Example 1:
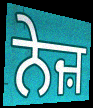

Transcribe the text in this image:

ਨੇਜ਼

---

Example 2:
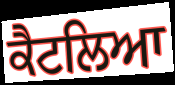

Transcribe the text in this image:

ਕੈਟਲਿਆ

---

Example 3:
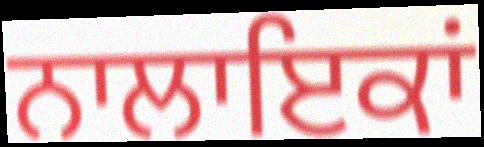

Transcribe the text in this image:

ਨਾਲਾਇਕਾਂ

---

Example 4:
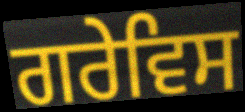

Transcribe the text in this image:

ਗਰੇਵਿਸ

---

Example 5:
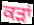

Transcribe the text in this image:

ਕੜਾਂ